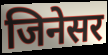
जिनेसर